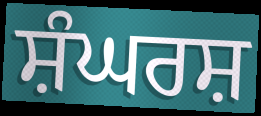
ਸ਼ੰਘਰਸ਼